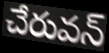
చేరువన్